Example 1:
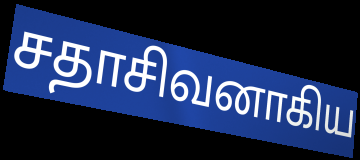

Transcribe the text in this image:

சதாசிவனாகிய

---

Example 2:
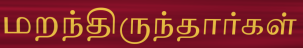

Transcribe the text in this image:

மறந்திருந்தார்கள்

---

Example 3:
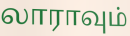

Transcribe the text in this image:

லாராவும்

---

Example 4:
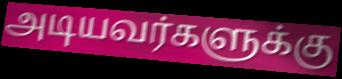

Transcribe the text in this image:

அடியவர்களுக்கு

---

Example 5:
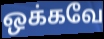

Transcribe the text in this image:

ஒக்கவே